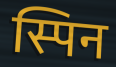
स्पिन